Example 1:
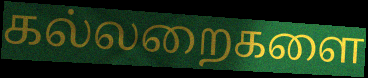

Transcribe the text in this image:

கல்லறைகளை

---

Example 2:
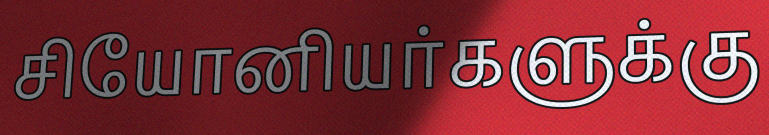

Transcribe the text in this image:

சியோனியர்களுக்கு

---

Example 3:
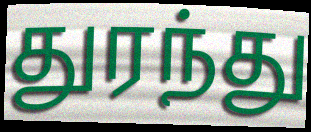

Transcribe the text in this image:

துரந்து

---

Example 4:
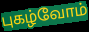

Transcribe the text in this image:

புகழ்வோம்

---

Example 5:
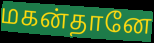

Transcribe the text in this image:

மகன்தானே